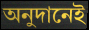
অনুদানেই